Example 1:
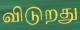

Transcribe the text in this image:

விடுறது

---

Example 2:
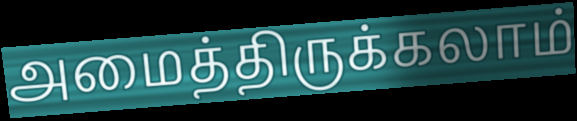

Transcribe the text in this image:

அமைத்திருக்கலாம்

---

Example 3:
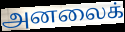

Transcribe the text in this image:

அனலைக்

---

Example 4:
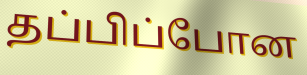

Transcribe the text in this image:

தப்பிப்போன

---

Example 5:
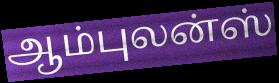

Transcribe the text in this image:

ஆம்புலன்ஸ்